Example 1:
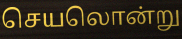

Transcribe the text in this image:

செயலொன்று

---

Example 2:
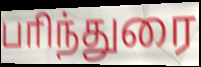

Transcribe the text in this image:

பரிந்துரை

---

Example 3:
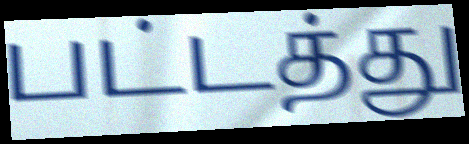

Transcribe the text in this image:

பட்டத்து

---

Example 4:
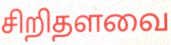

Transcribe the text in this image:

சிறிதளவை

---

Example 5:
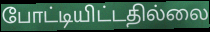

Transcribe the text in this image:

போட்டியிட்டதில்லை